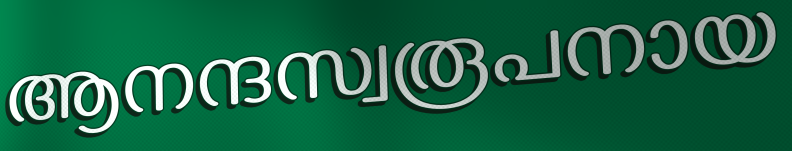
ആനന്ദസ്വരൂപനായ